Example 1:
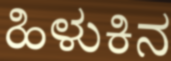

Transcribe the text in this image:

ಹಿಳುಕಿನ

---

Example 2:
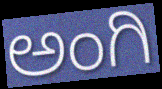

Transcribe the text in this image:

ಅಂಗಿ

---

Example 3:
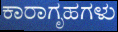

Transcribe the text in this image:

ಕಾರಾಗೃಹಗಳು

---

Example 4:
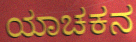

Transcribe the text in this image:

ಯಾಚಕನ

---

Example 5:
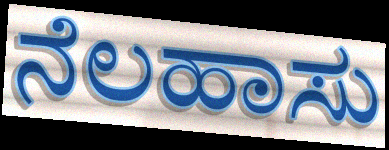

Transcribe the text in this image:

ನೆಲಹಾಸು